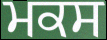
ਮਕਸ